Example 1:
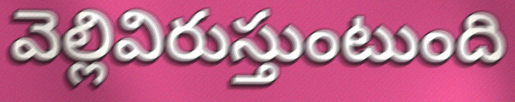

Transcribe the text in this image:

వెల్లివిరుస్తుంటుంది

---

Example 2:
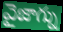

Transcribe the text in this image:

వైజాగ్ను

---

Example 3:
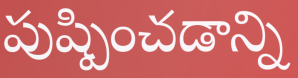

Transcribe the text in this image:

పుష్పించడాన్ని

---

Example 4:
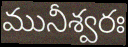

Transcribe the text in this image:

మునీశ్వరః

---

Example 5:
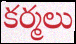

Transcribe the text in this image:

కర్మలు